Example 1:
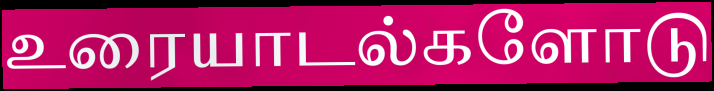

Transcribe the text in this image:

உரையாடல்களோடு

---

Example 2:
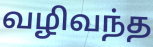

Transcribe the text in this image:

வழிவந்த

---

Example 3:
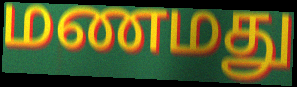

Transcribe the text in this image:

மணமது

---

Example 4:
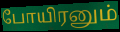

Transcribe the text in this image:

போயிரனும்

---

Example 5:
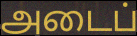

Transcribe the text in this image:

அடைப்